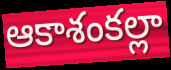
ఆకాశంకల్లా